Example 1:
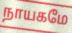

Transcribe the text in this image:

நாயகமே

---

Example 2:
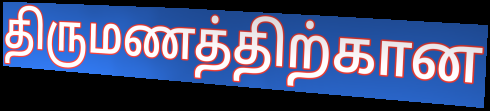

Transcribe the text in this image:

திருமணத்திற்கான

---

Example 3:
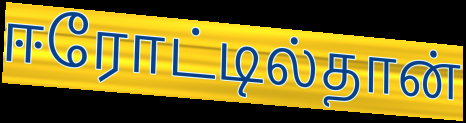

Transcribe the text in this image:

ஈரோட்டில்தான்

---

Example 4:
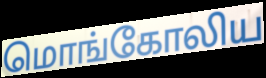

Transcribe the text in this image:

மொங்கோலிய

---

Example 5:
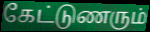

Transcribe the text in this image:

கேட்டுணரும்